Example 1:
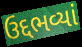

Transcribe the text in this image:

ઉદ્દભવ્યાં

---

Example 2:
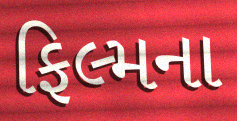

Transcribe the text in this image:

ફિલ્મના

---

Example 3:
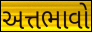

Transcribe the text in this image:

અત્તભાવો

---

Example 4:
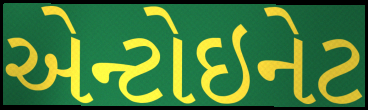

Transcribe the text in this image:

એન્ટોઇનેટ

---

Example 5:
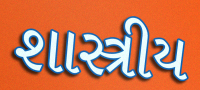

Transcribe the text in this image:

શાસ્ત્રીય